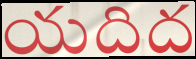
యదిద